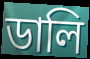
ডালি